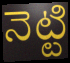
నెట్టి